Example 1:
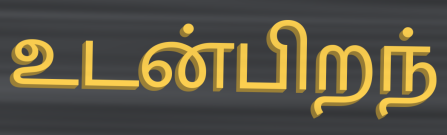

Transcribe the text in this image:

உடன்பிறந்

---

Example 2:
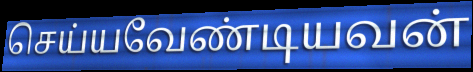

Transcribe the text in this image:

செய்யவேண்டியவன்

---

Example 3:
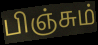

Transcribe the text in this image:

பிஞ்சும்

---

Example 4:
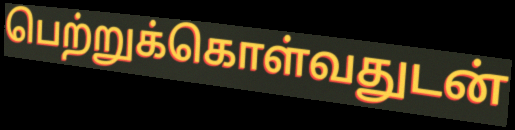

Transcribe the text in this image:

பெற்றுக்கொள்வதுடன்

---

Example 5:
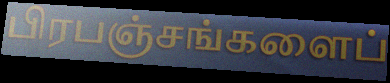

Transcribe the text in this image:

பிரபஞ்சங்களைப்